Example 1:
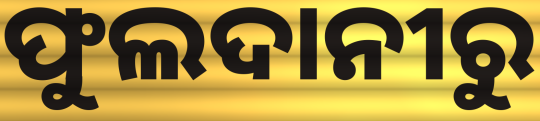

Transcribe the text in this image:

ଫୁଲଦାନୀରୁ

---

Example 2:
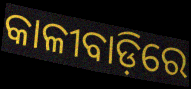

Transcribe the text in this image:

କାଳୀବାଡ଼ିରେ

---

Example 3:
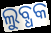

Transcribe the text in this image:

ଲୁବ୍ଧକ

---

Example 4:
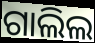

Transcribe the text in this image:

ଗାଲିଲ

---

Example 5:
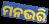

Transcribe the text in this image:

ମନଭରି